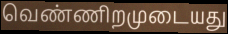
வெண்ணிறமுடையது